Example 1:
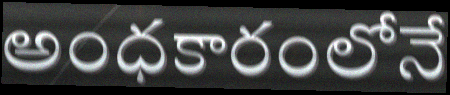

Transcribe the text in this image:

అంధకారంలోనే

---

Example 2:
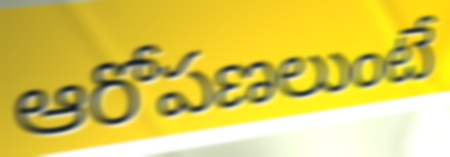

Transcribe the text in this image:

ఆరోపణలుంటే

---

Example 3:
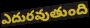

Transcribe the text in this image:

ఎదురవుతుంది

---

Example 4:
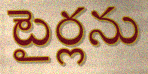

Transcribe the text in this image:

టైర్లను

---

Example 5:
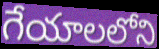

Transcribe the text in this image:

గేయాలలోని